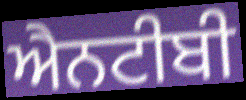
ਐਨਟੀਬੀ